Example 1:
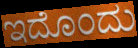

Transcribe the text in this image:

ಇದೊಂದು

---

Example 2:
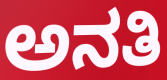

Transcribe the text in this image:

ಅನತಿ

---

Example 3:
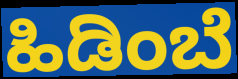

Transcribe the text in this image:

ಹಿಡಿಂಬೆ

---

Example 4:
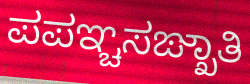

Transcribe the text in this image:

ಪಪಞ್ಚಸಙ್ಖಾತಿ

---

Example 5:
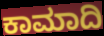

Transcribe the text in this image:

ಕಾಮಾದಿ